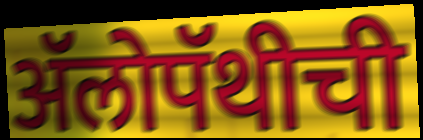
ॲलोपॅथीची